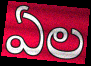
ఏల